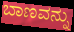
ಬಾಣವನ್ನು